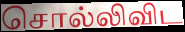
சொல்லிவிட